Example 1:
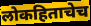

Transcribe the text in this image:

लोकहिताचेच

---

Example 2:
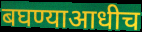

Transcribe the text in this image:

बघण्याआधीच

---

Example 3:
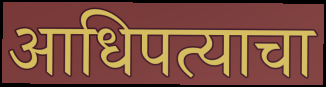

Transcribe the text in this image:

आधिपत्याचा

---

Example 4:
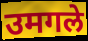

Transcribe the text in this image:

उमगले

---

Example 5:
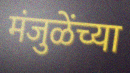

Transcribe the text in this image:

मंजुळेंच्या